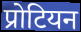
प्रोटियन